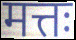
मत्तः